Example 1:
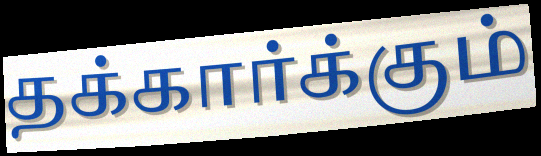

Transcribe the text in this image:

தக்கார்க்கும்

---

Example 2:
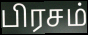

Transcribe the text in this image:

பிரசம்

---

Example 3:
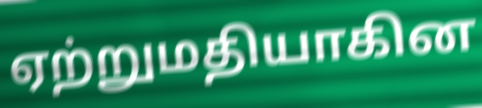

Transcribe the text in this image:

ஏற்றுமதியாகின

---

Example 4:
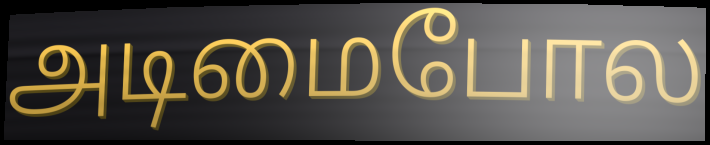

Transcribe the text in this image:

அடிமைபோல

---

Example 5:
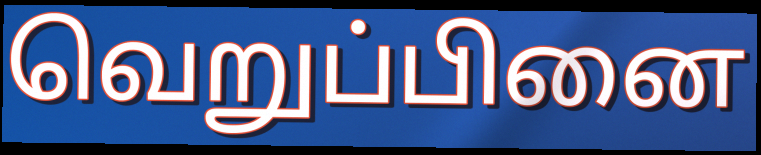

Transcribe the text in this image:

வெறுப்பினை